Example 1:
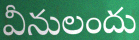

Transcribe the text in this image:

వీనులందు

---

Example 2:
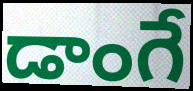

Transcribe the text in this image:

డాంగే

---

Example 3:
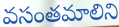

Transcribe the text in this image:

వసంతమాలిని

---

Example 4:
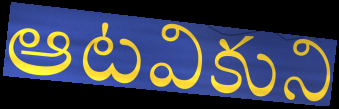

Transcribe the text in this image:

ఆటవికుని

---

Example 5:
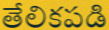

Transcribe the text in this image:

తేలికపడి